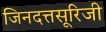
जिनदत्तसूरिजी